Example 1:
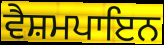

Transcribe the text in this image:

ਵੈਸ਼ਮਪਾਇਨ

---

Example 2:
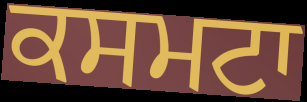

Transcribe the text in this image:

ਕਸਮਟਾ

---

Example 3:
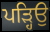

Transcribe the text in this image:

ਪੜ੍ਹਿਉ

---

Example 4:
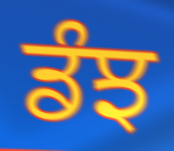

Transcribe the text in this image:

ਡੰਝ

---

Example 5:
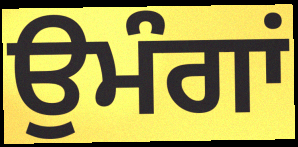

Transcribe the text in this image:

ਉਮੰਗਾਂ